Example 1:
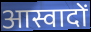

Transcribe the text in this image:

आस्वादों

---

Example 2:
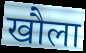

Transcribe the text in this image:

खौला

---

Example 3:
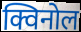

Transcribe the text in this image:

क्विनोल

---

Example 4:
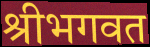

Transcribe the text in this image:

श्रीभगवत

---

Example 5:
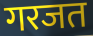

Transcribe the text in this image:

गरजत